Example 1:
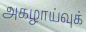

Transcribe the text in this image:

அகழாய்வுக்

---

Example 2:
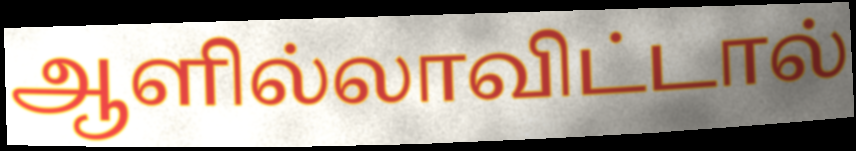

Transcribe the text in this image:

ஆளில்லாவிட்டால்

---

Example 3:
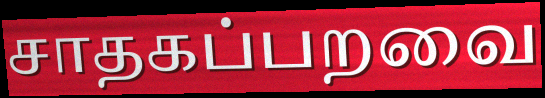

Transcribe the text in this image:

சாதகப்பறவை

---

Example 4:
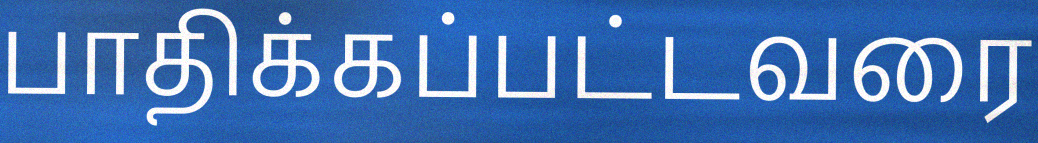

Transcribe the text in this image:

பாதிக்கப்பட்டவரை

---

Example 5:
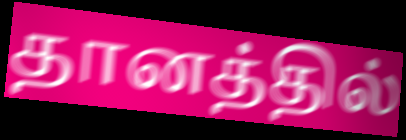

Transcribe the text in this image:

தானத்தில்